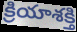
క్రియాశక్తి